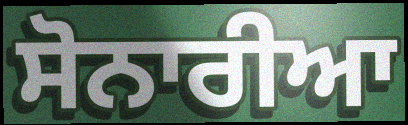
ਸੋਨਾਰੀਆ